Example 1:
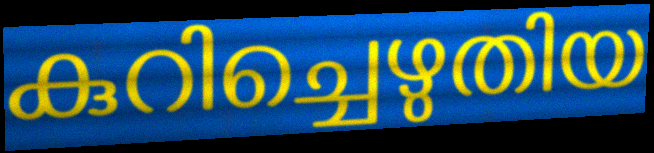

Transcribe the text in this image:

കുറിച്ചെഴുതിയ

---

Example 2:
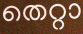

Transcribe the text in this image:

തെറ്റാ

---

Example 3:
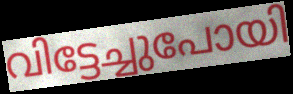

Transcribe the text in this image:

വിട്ടേച്ചുപോയി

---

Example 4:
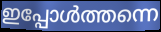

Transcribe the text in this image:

ഇപ്പോൾത്തന്നെ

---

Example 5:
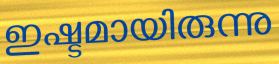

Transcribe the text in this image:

ഇഷ്ടമായിരുന്നു